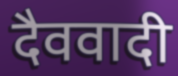
दैववादी